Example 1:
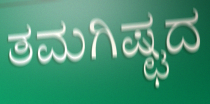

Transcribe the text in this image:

ತಮಗಿಷ್ಟದ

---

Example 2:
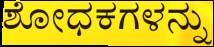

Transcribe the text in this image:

ಶೋಧಕಗಳನ್ನು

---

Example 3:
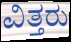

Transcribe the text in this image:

ವಿತ್ತರು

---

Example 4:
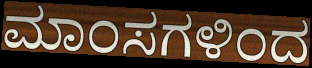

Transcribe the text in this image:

ಮಾಂಸಗಳಿಂದ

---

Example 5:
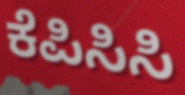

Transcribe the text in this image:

ಕೆಪಿಸಿಸಿ